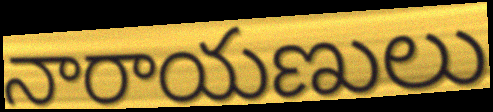
నారాయణులు